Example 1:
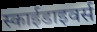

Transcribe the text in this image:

स्काईडाइवर्स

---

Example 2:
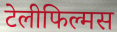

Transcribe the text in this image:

टेलीफिल्मस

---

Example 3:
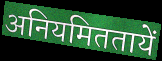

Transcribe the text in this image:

अनियमिततायें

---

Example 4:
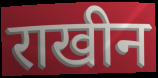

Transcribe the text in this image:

राखीन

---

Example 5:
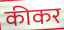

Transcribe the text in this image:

कीकर